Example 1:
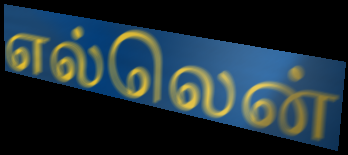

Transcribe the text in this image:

எல்லென்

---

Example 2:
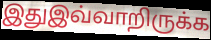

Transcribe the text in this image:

இதுஇவ்வாறிருக்க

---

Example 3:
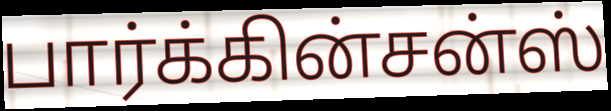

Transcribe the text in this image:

பார்க்கின்சன்ஸ்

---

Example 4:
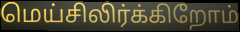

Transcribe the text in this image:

மெய்சிலிர்க்கிறோம்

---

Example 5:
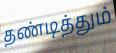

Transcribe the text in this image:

தண்டித்தும்